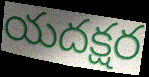
యదక్షర